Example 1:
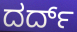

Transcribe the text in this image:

ದರ್ದ್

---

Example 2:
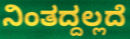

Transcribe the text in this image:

ನಿಂತದ್ದಲ್ಲದೆ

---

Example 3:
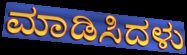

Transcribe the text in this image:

ಮಾಡಿಸಿದಳು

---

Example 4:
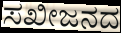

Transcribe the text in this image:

ಸಖೀಜನದ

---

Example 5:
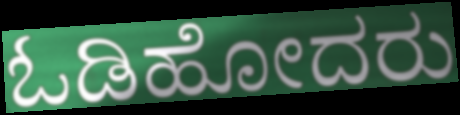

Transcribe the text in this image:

ಓಡಿಹೋದರು